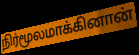
நிர்மூலமாக்கினான்